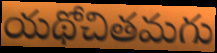
యథోచితమగు